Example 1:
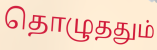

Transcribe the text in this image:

தொழுததும்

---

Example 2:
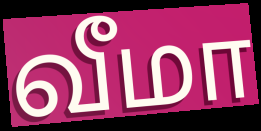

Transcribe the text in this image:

வீமா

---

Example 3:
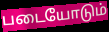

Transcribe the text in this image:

படையோடும்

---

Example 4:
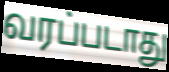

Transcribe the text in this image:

வரப்படாது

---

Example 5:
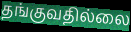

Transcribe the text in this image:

தங்குவதில்லை